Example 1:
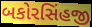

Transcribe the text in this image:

બકોરસિંહજી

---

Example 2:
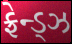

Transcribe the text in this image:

ફ્રેન્ડ્ઝ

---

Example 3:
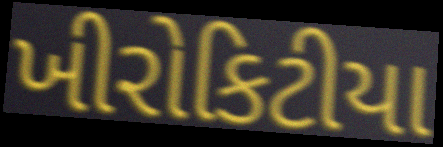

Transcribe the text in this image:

ખીરોકિટીયા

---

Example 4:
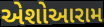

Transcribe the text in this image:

એશોઆરામ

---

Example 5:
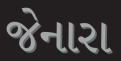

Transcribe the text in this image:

જેનારા